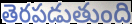
తెరపడుతుంది